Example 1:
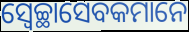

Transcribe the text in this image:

ସ୍ୱେଚ୍ଛାସେବକମାନେ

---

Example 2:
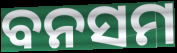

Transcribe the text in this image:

ବନସମ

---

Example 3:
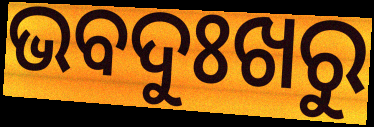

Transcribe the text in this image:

ଭବଦୁଃଖରୁ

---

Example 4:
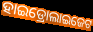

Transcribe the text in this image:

ହାଇଡ୍ରୋଲାଇଜେଟ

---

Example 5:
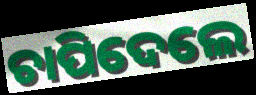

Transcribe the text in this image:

ଚାପିଦେଲେ